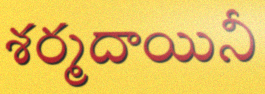
శర్మదాయినీ